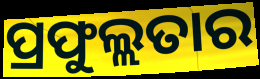
ପ୍ରଫୁଲ୍ଲତାର